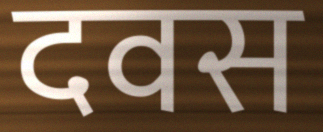
दवस